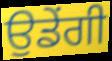
ਉਡੇਂਗੀ